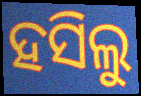
ହସିଲୁ